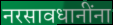
नरसावधानींना